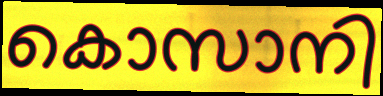
കൊസാനി